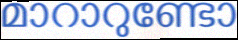
മാറാറുണ്ടോ